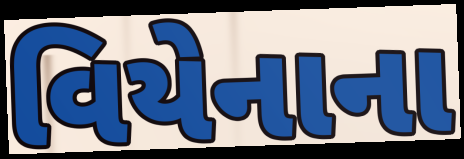
વિયેનાના